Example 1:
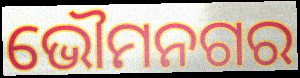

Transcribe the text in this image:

ଭୌମନଗର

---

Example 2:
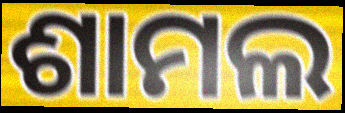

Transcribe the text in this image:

ଶାମଲ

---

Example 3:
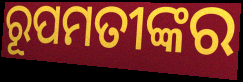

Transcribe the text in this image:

ରୂପମତୀଙ୍କର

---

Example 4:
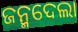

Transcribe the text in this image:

ଜନ୍ମଦେଲା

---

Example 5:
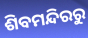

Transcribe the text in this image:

ଶିବମନ୍ଦିରରୁ